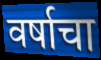
वर्षाचा